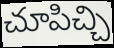
చూపిచ్చి